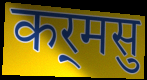
कर्मसु